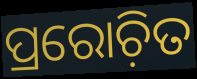
ପ୍ରରୋଚ଼ିତ